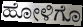
ಹೋಳಿಗೊ